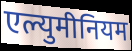
एल्युमीनियम